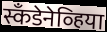
स्कॅंडेनेव्हिया